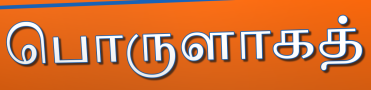
பொருளாகத்